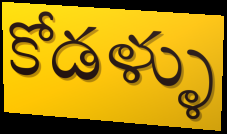
కోడళ్ళు